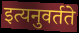
इत्यनुवर्तते